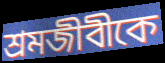
শ্রমজীবীকে